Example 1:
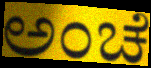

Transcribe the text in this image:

ಅಂಚೆ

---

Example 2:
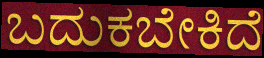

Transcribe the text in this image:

ಬದುಕಬೇಕಿದೆ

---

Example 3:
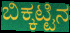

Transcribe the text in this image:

ಬಿಕ್ಕಟ್ಟಿನ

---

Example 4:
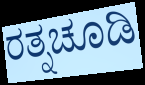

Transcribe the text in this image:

ರತ್ನಚೂಡಿ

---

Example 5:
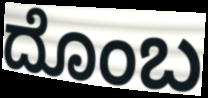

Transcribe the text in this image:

ದೊಂಬ